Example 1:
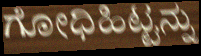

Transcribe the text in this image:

ಗೋಧಿಹಿಟ್ಟನ್ನು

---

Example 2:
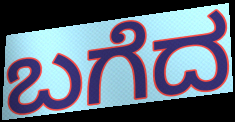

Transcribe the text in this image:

ಬಗೆದ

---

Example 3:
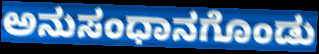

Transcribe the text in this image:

ಅನುಸಂಧಾನಗೊಂಡು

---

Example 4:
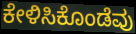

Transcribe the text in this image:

ಕೇಳಿಸಿಕೊಂಡೆವು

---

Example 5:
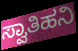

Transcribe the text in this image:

ಸ್ವಾತಿಹನಿ